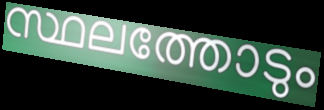
സ്ഥലത്തോടും